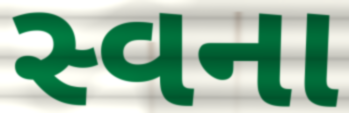
સ્વના